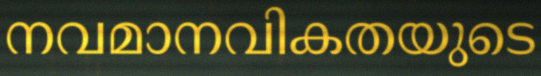
നവമാനവികതയുടെ